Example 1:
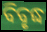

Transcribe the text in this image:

ବିବୃଦ୍ଧ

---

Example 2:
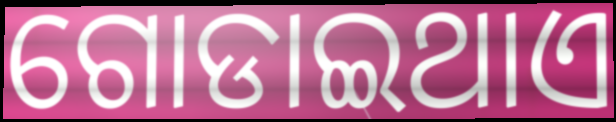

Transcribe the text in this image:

ଗୋଡାଇଥାଏ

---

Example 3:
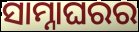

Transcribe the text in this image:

ସାମ୍ନାଘରର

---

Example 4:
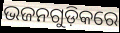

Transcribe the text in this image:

ଭଜନଗୁଡ଼ିକରେ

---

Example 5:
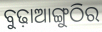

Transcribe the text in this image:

ବୁଢ଼ାଆଙ୍ଗୁଠିର